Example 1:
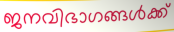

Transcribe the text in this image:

ജനവിഭാഗങ്ങൾക്ക്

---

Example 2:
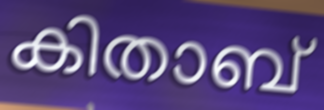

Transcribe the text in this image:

കിതാബ്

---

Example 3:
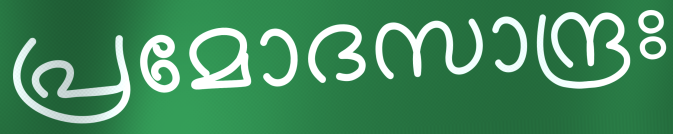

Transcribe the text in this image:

പ്രമോദസാന്ദ്രഃ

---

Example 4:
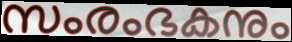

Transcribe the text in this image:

സംരംഭകനും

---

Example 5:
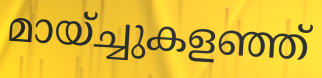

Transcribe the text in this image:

മായ്ച്ചുകളഞ്ഞ്